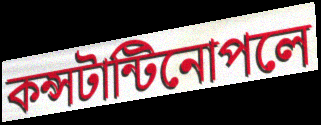
কন্সটান্টিনোপলে